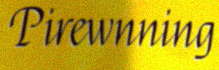
Pirewnning